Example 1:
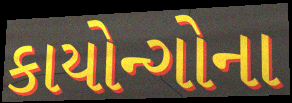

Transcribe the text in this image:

કાયોન્ગોના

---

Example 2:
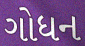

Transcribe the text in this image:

ગોધન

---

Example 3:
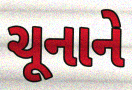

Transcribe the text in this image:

ચૂનાને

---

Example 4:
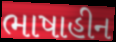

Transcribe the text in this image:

ભાષાહીન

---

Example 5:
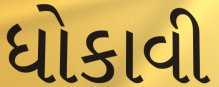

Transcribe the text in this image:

ધોકાવી